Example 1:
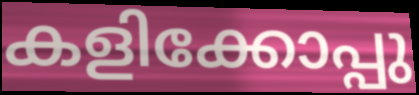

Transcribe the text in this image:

കളിക്കോപ്പു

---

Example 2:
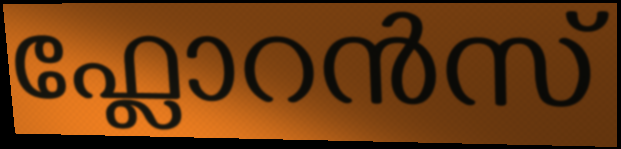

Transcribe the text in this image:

ഫ്ലോറൻസ്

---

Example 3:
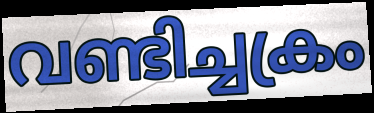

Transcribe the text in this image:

വണ്ടിച്ചക്രം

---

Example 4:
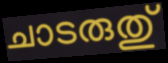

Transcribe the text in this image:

ചാടരുതു്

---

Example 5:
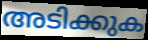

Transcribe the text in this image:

അടിക്കുക